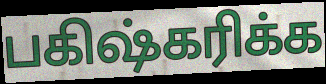
பகிஷ்கரிக்க